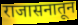
राजासनातून